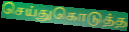
செய்துகொடுத்த